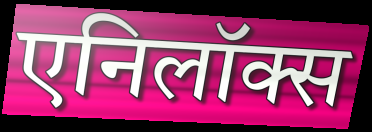
एनिलॉक्स